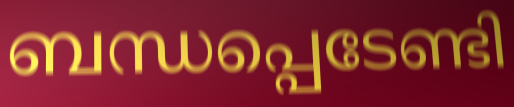
ബന്ധപ്പെടേണ്ടി